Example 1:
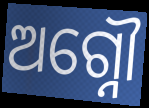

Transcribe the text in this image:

ଅଗ୍ନୌ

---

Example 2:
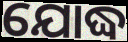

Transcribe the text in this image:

ଯୋଦ୍ଧ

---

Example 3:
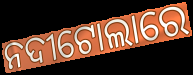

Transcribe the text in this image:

ନଦୀଟୋଲାରେ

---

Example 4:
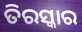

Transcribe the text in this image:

ତିରସ୍କାର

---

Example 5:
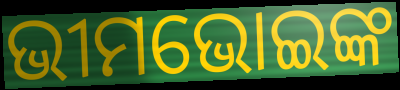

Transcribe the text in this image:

ଭୀମଭୋଇଙ୍କ